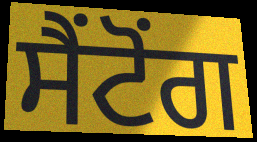
ਸੈਂਟੋਂਗ